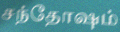
சந்தோஷம்